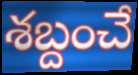
శబ్దంచే